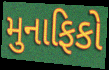
મુનાફિકો